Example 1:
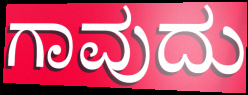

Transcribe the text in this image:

ಗಾವುದು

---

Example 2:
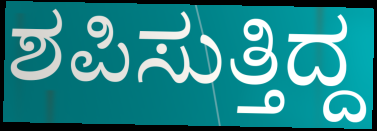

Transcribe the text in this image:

ಶಪಿಸುತ್ತಿದ್ದ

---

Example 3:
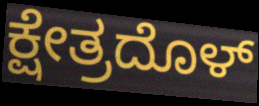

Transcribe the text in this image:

ಕ್ಷೇತ್ರದೊಳ್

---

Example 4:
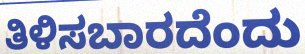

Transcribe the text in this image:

ತಿಳಿಸಬಾರದೆಂದು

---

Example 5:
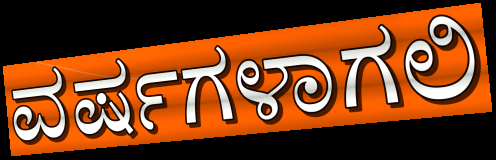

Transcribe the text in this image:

ವರ್ಷಗಳಾಗಲಿ